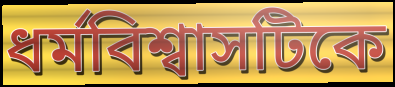
ধর্মবিশ্বাসটিকে